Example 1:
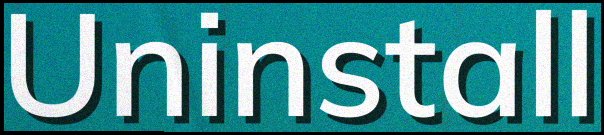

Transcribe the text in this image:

Uninstall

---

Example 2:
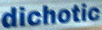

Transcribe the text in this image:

dichotic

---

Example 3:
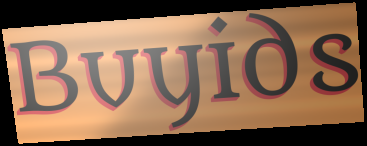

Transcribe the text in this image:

Buyids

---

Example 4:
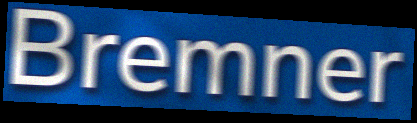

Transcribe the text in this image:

Bremner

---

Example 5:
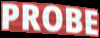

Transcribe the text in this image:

PROBE